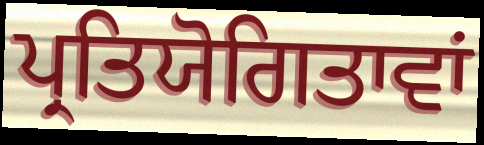
ਪ੍ਰਤਿਯੋਗਿਤਾਵਾਂ